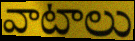
వాటాలు